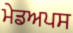
ਮੇਡਅਪਸ